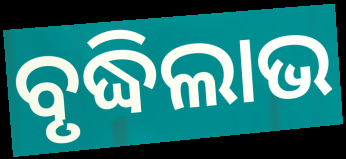
ବୃଦ୍ଧିଲାଭ